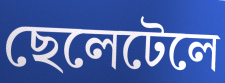
ছেলেটেলে